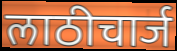
लाठीचार्ज